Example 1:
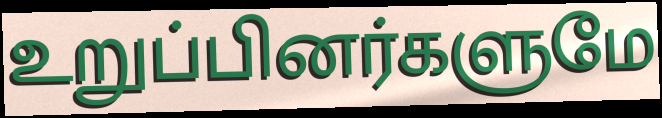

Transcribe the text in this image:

உறுப்பினர்களுமே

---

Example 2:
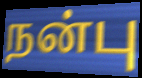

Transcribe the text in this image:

நன்பு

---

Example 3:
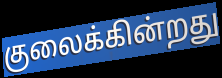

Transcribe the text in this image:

குலைக்கின்றது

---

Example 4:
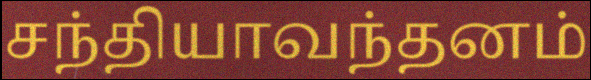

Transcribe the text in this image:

சந்தியாவந்தனம்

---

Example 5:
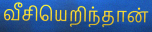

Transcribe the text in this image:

வீசியெறிந்தான்